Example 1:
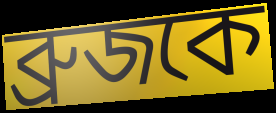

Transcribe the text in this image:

ব্রুজকে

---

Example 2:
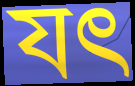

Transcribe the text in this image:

যৎ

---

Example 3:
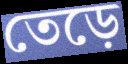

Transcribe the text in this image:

তেড়ে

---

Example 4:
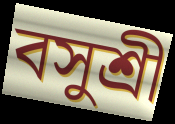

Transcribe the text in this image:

বসুশ্রী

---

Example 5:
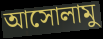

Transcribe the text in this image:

আসোলামু